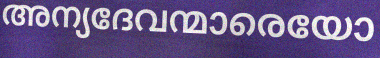
അന്യദേവന്മാരെയോ